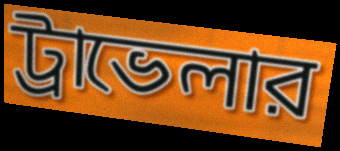
ট্রাভেলার